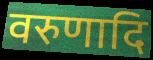
वरुणादि